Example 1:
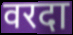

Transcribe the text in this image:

वरदा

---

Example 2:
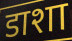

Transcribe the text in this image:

डाशा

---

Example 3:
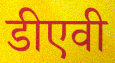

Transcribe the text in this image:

डीएवी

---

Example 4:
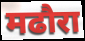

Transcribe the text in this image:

मढौरा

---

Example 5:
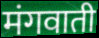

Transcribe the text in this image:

मंगवाती